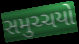
સમુચ્ચયો